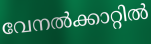
വേനൽക്കാറ്റിൽ